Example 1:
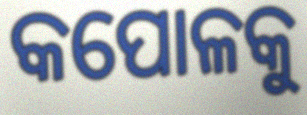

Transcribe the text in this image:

କପୋଳକୁ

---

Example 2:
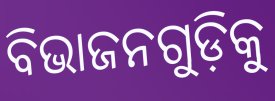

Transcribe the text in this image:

ବିଭାଜନଗୁଡ଼ିକୁ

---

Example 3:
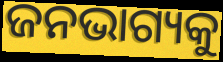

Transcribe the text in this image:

ଜନଭାଗ୍ୟକୁ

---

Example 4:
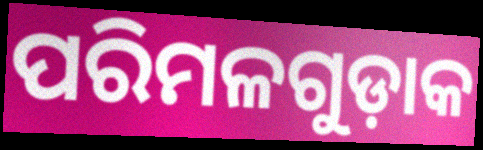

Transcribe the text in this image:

ପରିମଳଗୁଡ଼ାକ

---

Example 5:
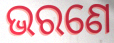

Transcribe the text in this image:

ଭରଣେ